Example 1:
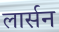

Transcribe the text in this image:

लार्सन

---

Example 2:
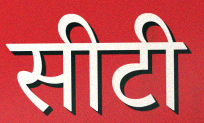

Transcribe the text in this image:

सीटी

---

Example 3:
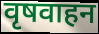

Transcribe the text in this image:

वृषवाहन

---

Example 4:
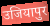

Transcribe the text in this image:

उजियापुर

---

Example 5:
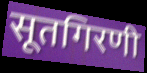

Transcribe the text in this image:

सूतगिरणी